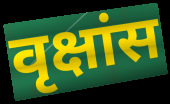
वृक्षांस